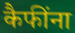
कैफींना